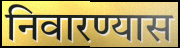
निवारण्यास